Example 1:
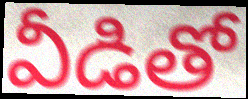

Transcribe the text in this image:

వీడితో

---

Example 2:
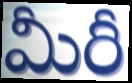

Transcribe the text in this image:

మీరీ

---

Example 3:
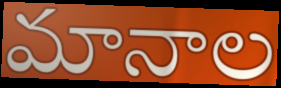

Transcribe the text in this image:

మానాల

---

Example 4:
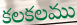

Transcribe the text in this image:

కలకలము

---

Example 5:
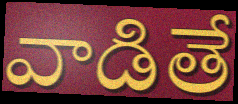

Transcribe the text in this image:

వాడితే